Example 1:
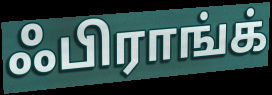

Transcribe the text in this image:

ஃபிராங்க்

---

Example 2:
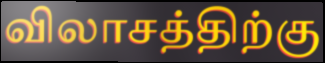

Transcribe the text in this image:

விலாசத்திற்கு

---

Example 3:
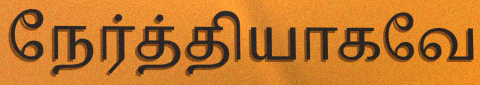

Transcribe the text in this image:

நேர்த்தியாகவே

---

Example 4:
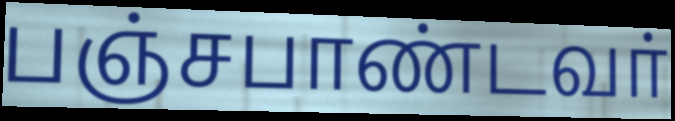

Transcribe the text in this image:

பஞ்சபாண்டவர்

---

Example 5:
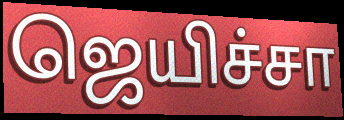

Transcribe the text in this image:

ஜெயிச்சா